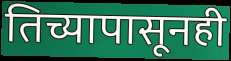
तिच्यापासूनही